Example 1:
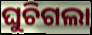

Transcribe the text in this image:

ଘୁଚିଗଲା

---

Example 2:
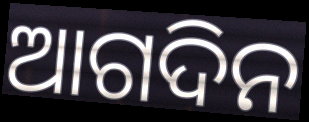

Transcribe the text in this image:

ଆଗଦିନ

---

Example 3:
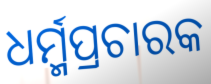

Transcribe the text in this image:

ଧର୍ମ୍ମପ୍ରଚାରକ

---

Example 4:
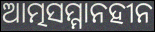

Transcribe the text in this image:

ଆତ୍ମସମ୍ମାନହୀନ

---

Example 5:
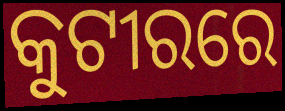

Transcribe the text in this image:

କୁଟୀରରେ